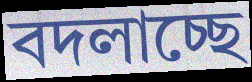
বদলাচ্ছে